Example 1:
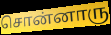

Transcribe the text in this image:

சொன்னாரு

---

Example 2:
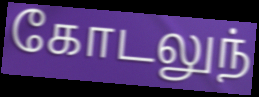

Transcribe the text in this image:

கோடலுந்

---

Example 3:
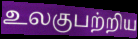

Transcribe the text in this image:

உலகுபற்றிய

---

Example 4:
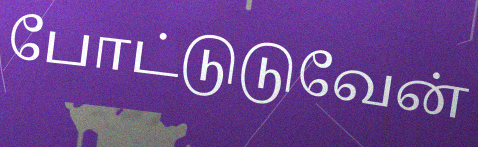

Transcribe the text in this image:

போட்டுடுவேன்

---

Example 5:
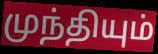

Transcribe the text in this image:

முந்தியும்